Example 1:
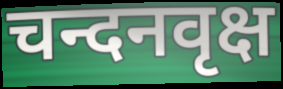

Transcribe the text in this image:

चन्दनवृक्ष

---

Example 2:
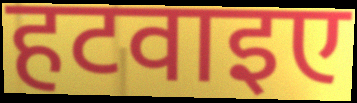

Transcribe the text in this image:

हटवाइए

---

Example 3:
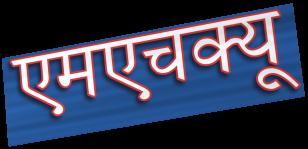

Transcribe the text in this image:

एमएचक्यू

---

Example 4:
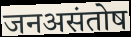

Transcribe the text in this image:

जनअसंतोष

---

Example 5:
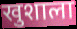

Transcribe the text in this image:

खुशाला